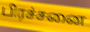
பிரச்சனை